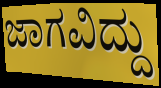
ಜಾಗವಿದ್ದು